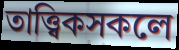
তাত্ত্বিকসকলে